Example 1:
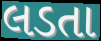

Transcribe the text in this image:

લડતા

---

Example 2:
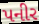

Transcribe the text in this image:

પનીર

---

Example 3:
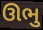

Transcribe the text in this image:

ઊભુ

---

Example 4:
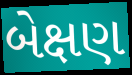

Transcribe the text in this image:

બેક્ષણ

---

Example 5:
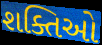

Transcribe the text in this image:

શક્તિઓ